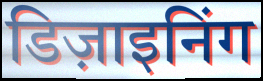
डिज़ाइनिंग